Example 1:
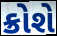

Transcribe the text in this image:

ક્રોશે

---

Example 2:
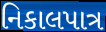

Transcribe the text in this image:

નિકાલપાત્ર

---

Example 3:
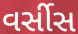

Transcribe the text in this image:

વર્સીસ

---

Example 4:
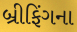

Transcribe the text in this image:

બ્રીફિંગના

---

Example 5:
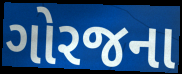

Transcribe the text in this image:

ગોરજના